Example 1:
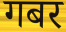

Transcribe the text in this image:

गबर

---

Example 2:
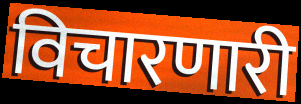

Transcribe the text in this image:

विचारणारी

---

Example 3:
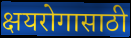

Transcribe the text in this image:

क्षयरोगासाठी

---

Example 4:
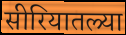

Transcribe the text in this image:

सीरियातल्या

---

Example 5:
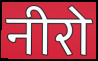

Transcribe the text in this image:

नीरो